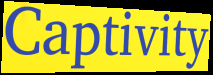
Captivity